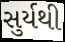
સુર્યથી